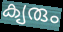
ക്യരും